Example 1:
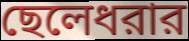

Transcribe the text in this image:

ছেলেধরার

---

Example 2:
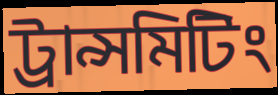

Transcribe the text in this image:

ট্রান্সমিটিং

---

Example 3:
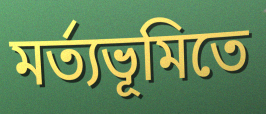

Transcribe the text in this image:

মর্ত্যভূমিতে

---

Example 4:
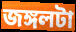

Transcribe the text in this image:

জঙ্গলটা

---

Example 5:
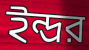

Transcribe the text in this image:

ইন্দ্রর